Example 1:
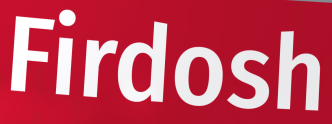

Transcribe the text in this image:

Firdosh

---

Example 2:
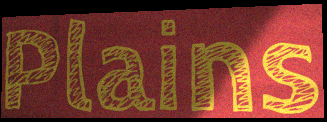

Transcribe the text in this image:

Plains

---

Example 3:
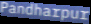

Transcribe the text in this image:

Pandharpur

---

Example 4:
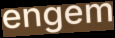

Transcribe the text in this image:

engem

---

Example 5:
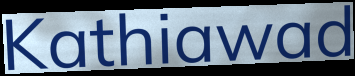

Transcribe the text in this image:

Kathiawad